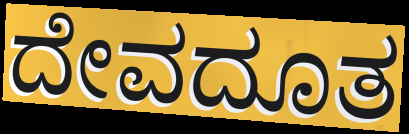
ದೇವದೂತ